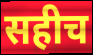
सहीच